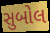
સુબોલ